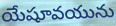
యేషూవయును